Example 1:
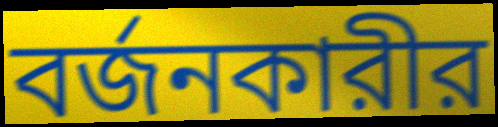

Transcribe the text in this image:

বর্জনকারীর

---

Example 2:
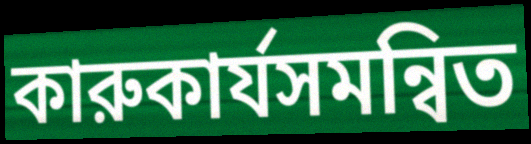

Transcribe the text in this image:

কারুকার্যসমন্বিত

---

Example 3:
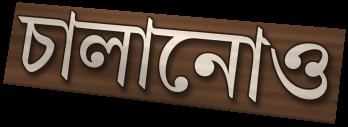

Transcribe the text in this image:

চালানোও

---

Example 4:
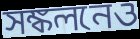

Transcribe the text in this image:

সঙ্কলনেও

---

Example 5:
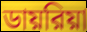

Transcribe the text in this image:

ডায়রিয়া